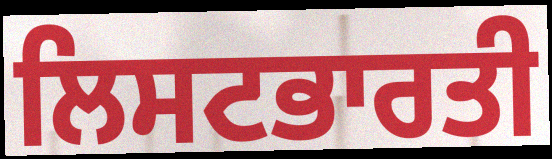
ਲਿਸਟਭਾਰਤੀ